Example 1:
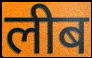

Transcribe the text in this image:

लीब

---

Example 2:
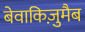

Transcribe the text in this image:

बेवाकिज़ुमैब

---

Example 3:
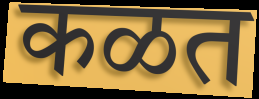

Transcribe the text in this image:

कळत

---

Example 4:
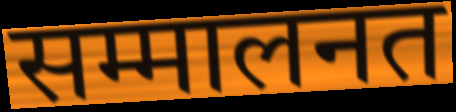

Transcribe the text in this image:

सम्मालनत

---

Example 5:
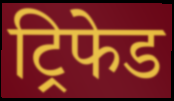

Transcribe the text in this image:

ट्रिफेड